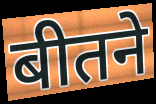
बीतने